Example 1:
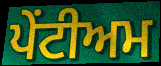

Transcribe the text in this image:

ਪੇਂਟੀਅਮ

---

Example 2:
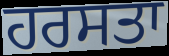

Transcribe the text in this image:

ਹਰਸਤਾ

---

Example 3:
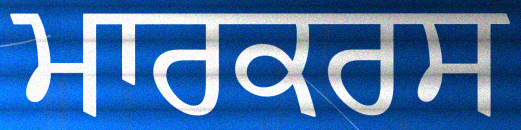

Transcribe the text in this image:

ਮਾਰਕਰਸ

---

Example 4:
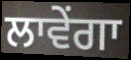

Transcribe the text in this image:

ਲਾਵੇਂਗਾ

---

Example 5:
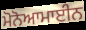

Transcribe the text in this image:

ਮੋਨੋਆਮਾਈਨ